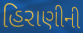
હિરાણીની